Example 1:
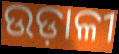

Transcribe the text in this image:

ଉଡ଼ାଳୀ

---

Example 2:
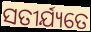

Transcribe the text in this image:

ସତୀର୍ଯ୍ୟତେ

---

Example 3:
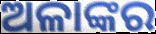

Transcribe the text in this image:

ଅଳାଙ୍କର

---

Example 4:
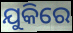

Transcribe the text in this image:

ଯୁକିରେ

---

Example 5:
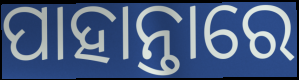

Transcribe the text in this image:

ପାହାନ୍ତାରେ